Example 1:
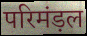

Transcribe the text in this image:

परिमंड़ल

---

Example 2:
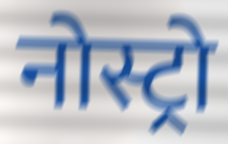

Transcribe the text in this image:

नोस्ट्रो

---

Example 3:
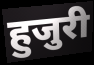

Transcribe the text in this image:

हुजुरी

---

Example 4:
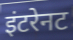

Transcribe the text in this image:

इंटरेनट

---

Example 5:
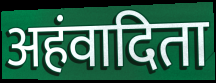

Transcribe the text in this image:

अहंवादिता